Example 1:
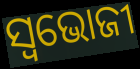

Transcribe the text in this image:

ସ୍ଵଭୋଜୀ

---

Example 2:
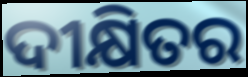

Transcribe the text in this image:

ଦୀକ୍ଷିତର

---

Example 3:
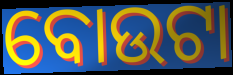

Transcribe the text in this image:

ବୋଉଟା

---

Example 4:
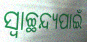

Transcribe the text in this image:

ସ୍ୱାଚ୍ଛନ୍ଦ୍ୟପାଇଁ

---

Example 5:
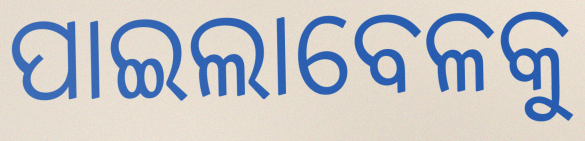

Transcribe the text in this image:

ପାଇଲାବେଳକୁ